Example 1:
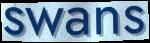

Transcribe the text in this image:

swans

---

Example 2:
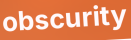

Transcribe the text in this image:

obscurity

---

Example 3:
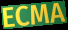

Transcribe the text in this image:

ECMA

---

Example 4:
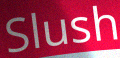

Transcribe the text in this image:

Slush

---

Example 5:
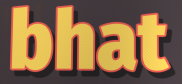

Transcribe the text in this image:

bhat